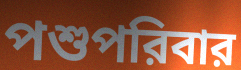
পশুপরিবার